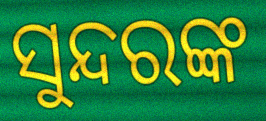
ସୁନ୍ଦରଙ୍କ